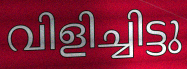
വിളിച്ചിട്ടു